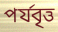
পর্যবৃত্ত